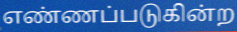
எண்ணப்படுகின்ற